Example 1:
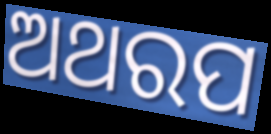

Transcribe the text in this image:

ଅଥରପ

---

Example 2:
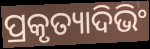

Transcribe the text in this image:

ପ୍ରକୃତ୍ୟାଦିଭିଂ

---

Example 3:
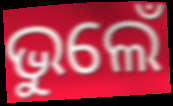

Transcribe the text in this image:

ଭୁଲେଁ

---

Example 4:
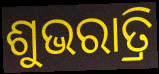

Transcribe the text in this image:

ଶୁଭରାତ୍ରି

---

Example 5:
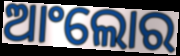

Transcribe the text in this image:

ଆଂଲୋର